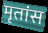
मृतांस